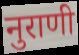
नुराणी